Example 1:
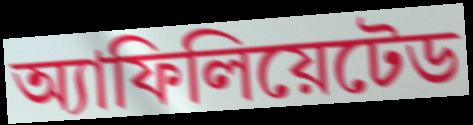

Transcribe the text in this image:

অ্যাফিলিয়েটেড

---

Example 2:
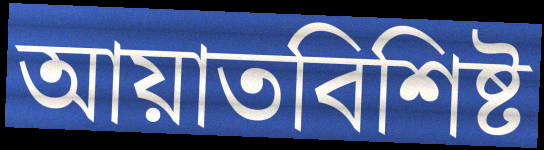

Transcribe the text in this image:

আয়াতবিশিষ্ট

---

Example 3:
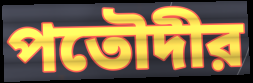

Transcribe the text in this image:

পতৌদীর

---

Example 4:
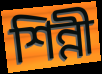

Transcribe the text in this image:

শিন্নী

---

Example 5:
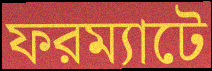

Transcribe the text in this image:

ফরম্যাটে